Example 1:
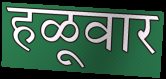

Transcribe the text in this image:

हळूवार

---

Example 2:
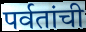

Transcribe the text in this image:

पर्वतांची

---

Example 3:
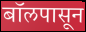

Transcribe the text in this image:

बॉलपासून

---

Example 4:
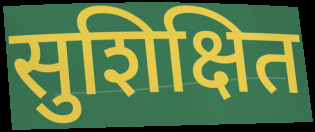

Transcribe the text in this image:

सुशिक्षित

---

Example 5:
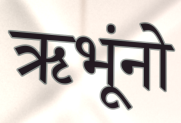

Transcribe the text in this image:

ऋभूंनो